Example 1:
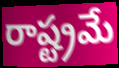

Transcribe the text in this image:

రాష్ట్రమే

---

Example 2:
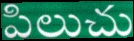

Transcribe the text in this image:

పిలుచు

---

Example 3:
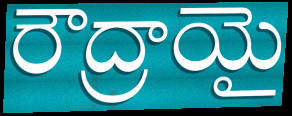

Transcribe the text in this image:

రౌద్రాయై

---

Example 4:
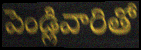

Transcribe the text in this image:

పెండ్లివారితో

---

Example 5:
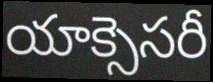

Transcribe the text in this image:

యాక్సెసరీ